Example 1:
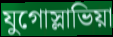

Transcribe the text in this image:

যুগোস্লাভিয়া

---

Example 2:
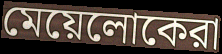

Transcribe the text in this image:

মেয়েলোকেরা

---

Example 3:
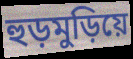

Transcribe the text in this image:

হুড়মুড়িয়ে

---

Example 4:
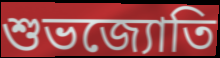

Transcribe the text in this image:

শুভজ্যোতি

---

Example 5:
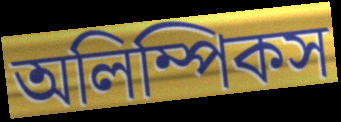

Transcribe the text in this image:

অলিম্পিকস